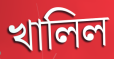
খালিল